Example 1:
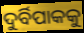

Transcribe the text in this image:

ଦୁର୍ବିପାକକୁ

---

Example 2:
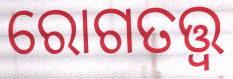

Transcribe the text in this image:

ରୋଗତତ୍ତ୍ୱ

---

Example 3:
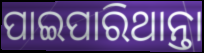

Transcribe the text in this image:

ପାଇପାରିଥାନ୍ତା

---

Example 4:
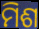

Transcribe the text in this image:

ମିଶ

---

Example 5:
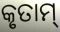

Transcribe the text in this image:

କୃତାମ୍